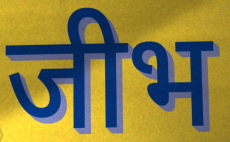
जीभ